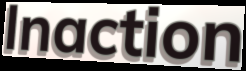
Inaction